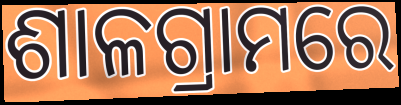
ଶାଳଗ୍ରାମରେ